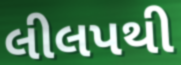
લીલપથી